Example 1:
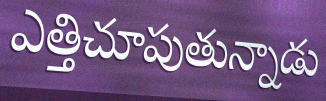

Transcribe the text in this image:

ఎత్తిచూపుతున్నాడు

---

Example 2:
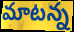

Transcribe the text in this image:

మాటన్న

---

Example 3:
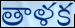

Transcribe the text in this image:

తాళక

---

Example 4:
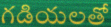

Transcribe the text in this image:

గడియలతో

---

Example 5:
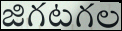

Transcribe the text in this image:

జిగటగల